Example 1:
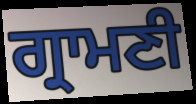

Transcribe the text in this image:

ਗ੍ਰਾਮਣੀ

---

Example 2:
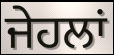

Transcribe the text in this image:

ਜੇਹਲਾਂ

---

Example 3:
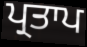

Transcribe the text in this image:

ਪ੍ਰਤਾਪ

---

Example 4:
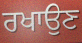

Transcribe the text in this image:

ਰਖਾਉਣ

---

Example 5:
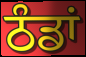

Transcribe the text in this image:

ਠੰਡਾਂ